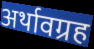
अर्थावग्रह